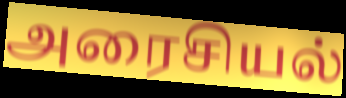
அரைசியல்